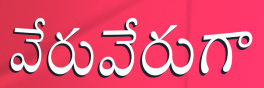
వేరువేరుగా